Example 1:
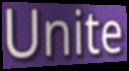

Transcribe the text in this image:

Unite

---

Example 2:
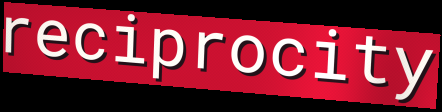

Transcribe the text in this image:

reciprocity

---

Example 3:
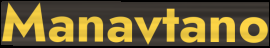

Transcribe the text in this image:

Manavtano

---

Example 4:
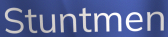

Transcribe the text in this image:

Stuntmen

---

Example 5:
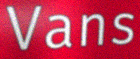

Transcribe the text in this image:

Vans